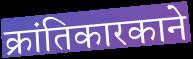
क्रांतिकारकाने